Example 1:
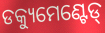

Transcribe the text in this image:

ଡକ୍ୟୁମେଣ୍ଟେଡ୍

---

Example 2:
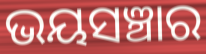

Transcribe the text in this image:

ଭୟସଞ୍ଚାର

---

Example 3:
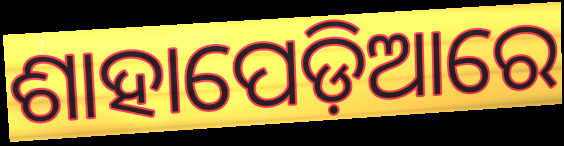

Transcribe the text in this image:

ଶାହାପେଡ଼ିଆରେ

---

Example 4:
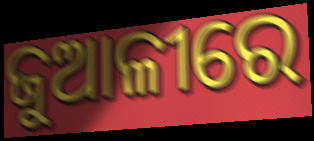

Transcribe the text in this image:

ଜୁଆଳୀରେ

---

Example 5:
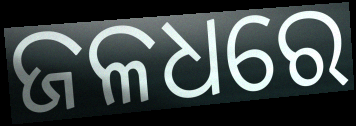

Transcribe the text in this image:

ଜଳଧରେ